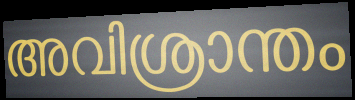
അവിശ്രാന്തം